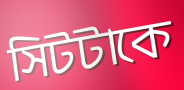
সিটটাকে